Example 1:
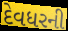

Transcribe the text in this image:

દેવધરની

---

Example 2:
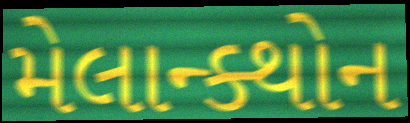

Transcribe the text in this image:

મેલાન્ક્થોન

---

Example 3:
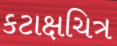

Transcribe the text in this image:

કટાક્ષચિત્ર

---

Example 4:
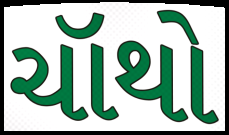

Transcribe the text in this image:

ચૉથો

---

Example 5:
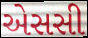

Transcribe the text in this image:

એસસી